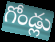
గోండ్లు